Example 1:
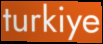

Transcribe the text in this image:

turkiye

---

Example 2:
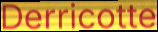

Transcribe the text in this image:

Derricotte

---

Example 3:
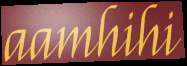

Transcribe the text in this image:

aamhihi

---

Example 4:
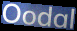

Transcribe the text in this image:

Oodal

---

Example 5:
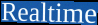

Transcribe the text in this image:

Realtime